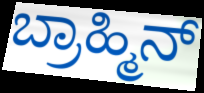
ಬ್ರಾಹ್ಮಿನ್